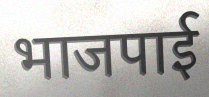
भाजपाई